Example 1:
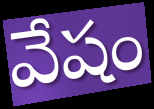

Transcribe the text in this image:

వేషం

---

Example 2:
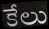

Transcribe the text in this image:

కేలు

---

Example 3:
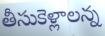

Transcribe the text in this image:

తీసుకెళ్లాలన్న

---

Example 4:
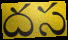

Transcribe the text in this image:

దస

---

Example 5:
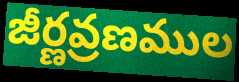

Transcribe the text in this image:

జీర్ణవ్రణముల